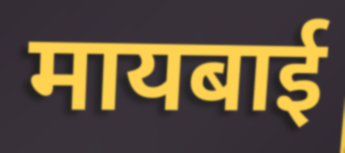
मायबाई